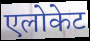
एलोकेट